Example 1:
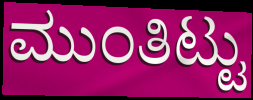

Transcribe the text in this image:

ಮುಂತಿಟ್ಟು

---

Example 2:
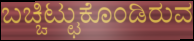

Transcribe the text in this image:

ಬಚ್ಚಿಟ್ಟುಕೊಂಡಿರುವ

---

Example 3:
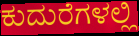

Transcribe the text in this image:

ಕುದುರೆಗಳಲ್ಲಿ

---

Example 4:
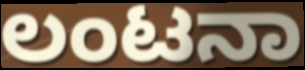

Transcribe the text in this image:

ಲಂಟನಾ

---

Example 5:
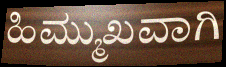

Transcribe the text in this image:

ಹಿಮ್ಮುಖವಾಗಿ